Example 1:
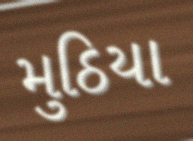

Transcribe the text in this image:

મુઠિયા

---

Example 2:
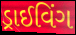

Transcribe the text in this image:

ડ્રાઈવિંગ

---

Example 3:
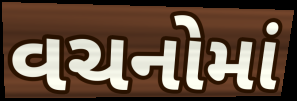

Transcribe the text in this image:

વચનોમાં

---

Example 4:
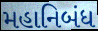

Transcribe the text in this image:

મહાનિબંધ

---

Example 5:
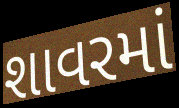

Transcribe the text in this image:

શાવરમાં